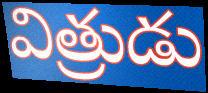
విత్రుడు